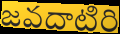
జవదాటిరి